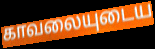
காவலையுடைய